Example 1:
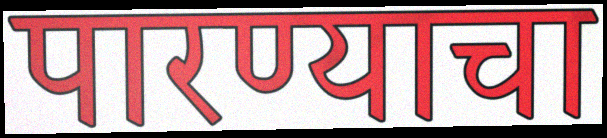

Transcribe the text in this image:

पारण्याचा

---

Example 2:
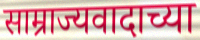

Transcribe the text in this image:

साम्राज्यवादाच्या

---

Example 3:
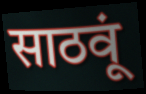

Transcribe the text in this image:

साठवूं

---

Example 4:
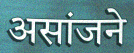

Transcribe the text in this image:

असांजने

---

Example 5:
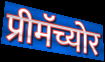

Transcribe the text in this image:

प्रीमॅच्योर